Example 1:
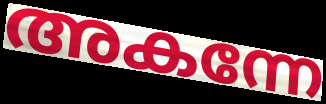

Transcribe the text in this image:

അകന്നേ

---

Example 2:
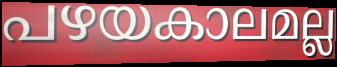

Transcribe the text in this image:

പഴയകാലമല്ല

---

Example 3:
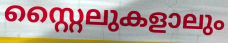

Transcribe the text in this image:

സ്റ്റൈലുകളാലും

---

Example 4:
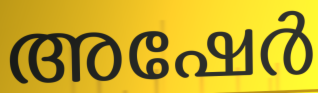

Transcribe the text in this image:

അഷേർ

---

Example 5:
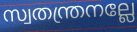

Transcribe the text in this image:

സ്വതന്ത്രനല്ലേ